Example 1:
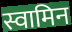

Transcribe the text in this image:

स्वामिन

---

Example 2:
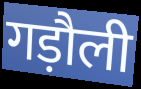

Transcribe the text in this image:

गड़ौली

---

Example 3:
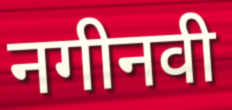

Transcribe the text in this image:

नगीनवी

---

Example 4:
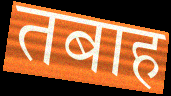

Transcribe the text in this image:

तबाह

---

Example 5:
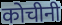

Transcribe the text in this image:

कोचीनी